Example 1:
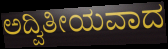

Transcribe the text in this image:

ಅದ್ವಿತೀಯವಾದ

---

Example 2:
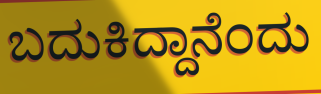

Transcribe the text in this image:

ಬದುಕಿದ್ದಾನೆಂದು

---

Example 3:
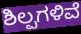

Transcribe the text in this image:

ಶಿಲ್ಪಗಳಿವೆ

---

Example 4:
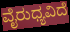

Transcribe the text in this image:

ವೈರುಧ್ಯವಿದೆ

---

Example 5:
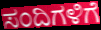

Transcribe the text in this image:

ಸಂದಿಗಳಿಗೆ